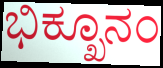
ಭಿಕ್ಖೂನಂ